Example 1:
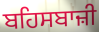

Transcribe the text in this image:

ਬਹਿਸਬਾਜ਼ੀ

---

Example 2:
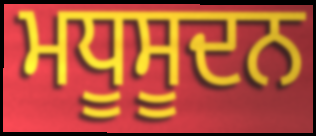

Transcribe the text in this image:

ਮਧੂਸੂਦਨ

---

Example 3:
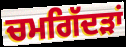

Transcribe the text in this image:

ਚਮਗਿੱਦੜਾਂ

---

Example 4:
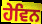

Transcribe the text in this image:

ਹੇਵਿਨ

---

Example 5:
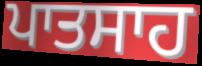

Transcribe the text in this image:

ਪਾਤਸਾਹ